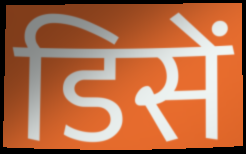
डिसें